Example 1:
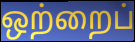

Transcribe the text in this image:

ஒற்றைப்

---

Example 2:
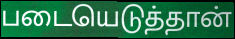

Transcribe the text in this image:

படையெடுத்தான்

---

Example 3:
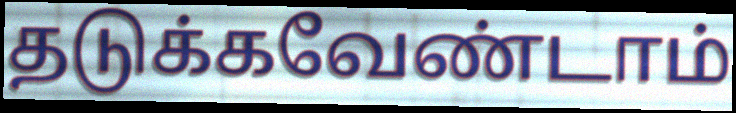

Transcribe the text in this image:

தடுக்கவேண்டாம்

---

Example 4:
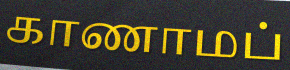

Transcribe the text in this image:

காணாமப்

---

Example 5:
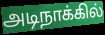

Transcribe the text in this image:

அடிநாக்கில்